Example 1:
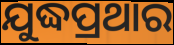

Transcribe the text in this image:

ଯୁଦ୍ଧପ୍ରଥାର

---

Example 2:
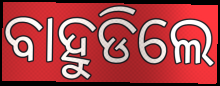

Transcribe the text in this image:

ବାହୁଡିଲେ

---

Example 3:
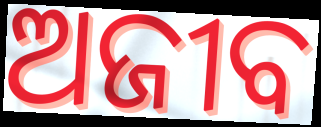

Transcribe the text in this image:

ଅଜୀବ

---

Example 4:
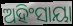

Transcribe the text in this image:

ଅହିଂସାୟା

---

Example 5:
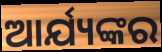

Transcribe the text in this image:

ଆର୍ଯ୍ୟଙ୍କର